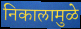
निकालामुळे